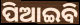
ପିଆଇବି